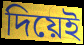
দিয়েই